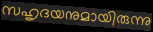
സഹൃദയനുമായിരുന്നു